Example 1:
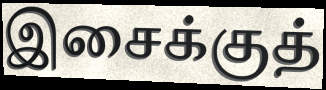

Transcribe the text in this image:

இசைக்குத்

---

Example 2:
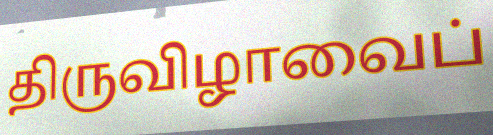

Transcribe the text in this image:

திருவிழாவைப்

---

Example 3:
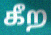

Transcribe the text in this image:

கீற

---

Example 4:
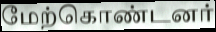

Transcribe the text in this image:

மேற்கொண்டனர்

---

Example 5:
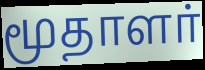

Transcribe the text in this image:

மூதாளர்